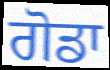
ਗੋਡਾ